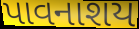
પાવનાશય